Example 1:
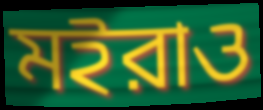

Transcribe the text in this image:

মইরাও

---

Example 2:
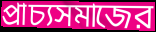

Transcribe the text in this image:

প্রাচ্যসমাজের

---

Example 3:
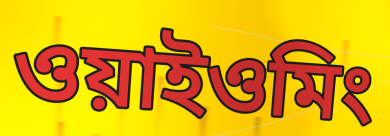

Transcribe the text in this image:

ওয়াইওমিং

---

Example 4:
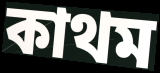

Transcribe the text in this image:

কাথম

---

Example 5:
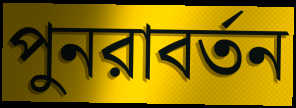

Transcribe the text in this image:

পুনরাবর্তন